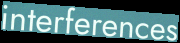
interferences